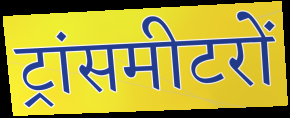
ट्रांसमीटरों